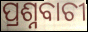
ପ୍ରଶ୍ନବାଚୀ